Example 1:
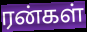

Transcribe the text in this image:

ரன்கள்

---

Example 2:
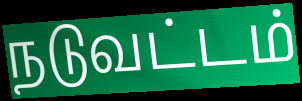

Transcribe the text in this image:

நடுவட்டம்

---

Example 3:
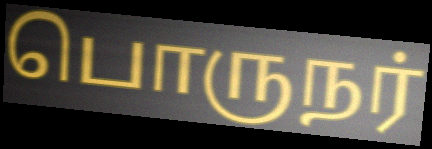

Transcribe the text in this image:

பொருநர்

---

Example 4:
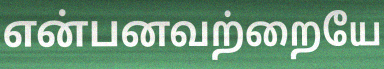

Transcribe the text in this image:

என்பனவற்றையே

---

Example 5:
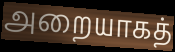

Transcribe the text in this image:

அறையாகத்